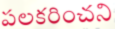
పలకరించని